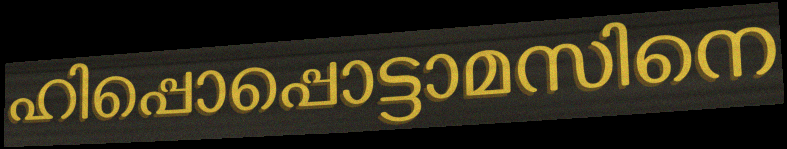
ഹിപ്പൊപ്പൊട്ടാമസിനെ